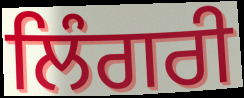
ਲਿੰਗਰੀ